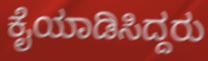
ಕೈಯಾಡಿಸಿದ್ದರು